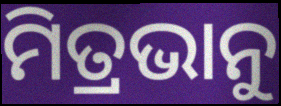
ମିତ୍ରଭାନୁ